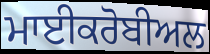
ਮਾਈਕਰੋਬੀਅਲ